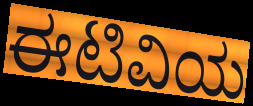
ಈಟಿವಿಯ